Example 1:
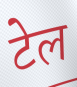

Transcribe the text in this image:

टेल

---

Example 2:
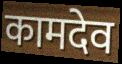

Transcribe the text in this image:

कामदेव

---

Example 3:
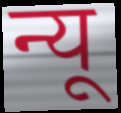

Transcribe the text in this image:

न्यू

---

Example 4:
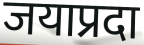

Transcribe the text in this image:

जयाप्रदा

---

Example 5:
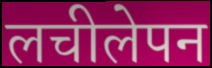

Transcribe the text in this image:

लचीलेपन